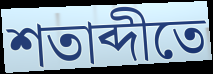
শতাব্দীতে